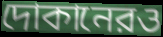
দোকানেরও